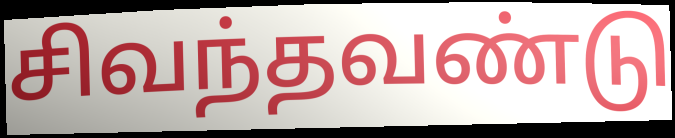
சிவந்தவண்டு